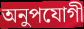
অনুপযোগী